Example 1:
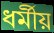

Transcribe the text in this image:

ধৰ্মীয়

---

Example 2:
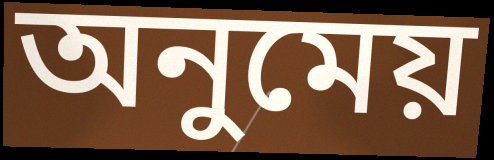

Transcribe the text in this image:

অনুমেয়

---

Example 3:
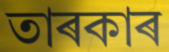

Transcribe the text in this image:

তাৰকাৰ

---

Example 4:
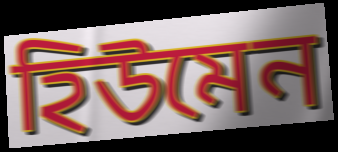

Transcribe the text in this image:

হিউমেন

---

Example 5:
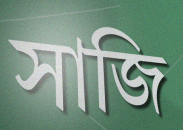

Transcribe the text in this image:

সাজি